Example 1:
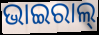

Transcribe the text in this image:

ଭାଇରାଲ୍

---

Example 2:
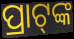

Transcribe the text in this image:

ପ୍ରାଟ୍‍ଙ୍କ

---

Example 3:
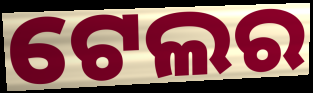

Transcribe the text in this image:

ଟେଲର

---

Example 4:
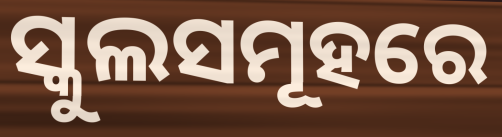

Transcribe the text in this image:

ସ୍କୁଲସମୂହରେ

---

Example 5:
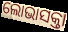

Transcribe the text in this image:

ଲୋଭାସକ୍ତା